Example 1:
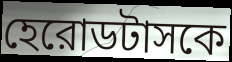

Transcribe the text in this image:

হেরোডটাসকে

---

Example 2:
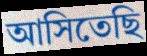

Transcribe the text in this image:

আসিতেছি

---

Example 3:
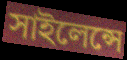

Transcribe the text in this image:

সাইলেন্সে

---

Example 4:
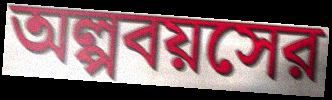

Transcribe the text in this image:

অল্পবয়সের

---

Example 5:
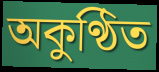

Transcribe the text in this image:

অকুণ্ঠিত